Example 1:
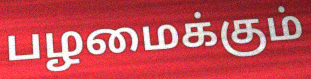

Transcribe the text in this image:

பழமைக்கும்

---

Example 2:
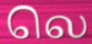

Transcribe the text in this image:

லெ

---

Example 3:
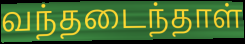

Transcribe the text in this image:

வந்தடைந்தாள்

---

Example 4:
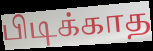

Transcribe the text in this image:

பிடிக்காத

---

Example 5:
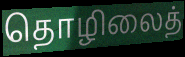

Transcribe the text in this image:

தொழிலைத்